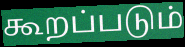
கூறப்படும்